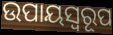
ଉପାୟସ୍ୱରୂପ